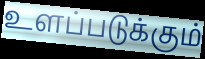
உளப்படுக்கும்